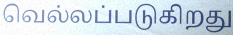
வெல்லப்படுகிறது